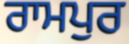
ਰਾਮਪੁਰ